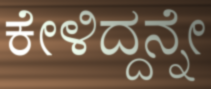
ಕೇಳಿದ್ದನ್ನೇ